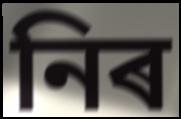
নিৰ